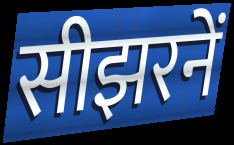
सीझरनें